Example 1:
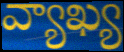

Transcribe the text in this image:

వ్యాఖ్య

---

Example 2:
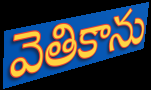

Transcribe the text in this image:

వెతికాను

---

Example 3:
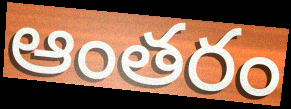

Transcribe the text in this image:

ఆంతరం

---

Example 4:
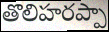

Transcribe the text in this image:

తొలిహరప్పా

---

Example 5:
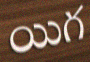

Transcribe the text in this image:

యిగ